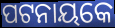
ପଟନାୟକେ